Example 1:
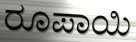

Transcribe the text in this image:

ರೂಪಾಯಿ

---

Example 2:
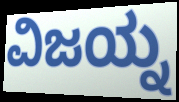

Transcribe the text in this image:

ವಿಜಯ್ನ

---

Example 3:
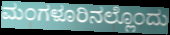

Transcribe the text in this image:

ಮಂಗಳೂರಿನಲ್ಲೊಂದು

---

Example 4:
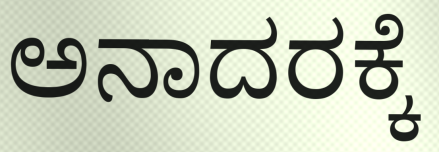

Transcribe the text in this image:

ಅನಾದರಕ್ಕೆ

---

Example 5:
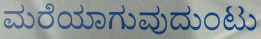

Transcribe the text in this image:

ಮರೆಯಾಗುವುದುಂಟು